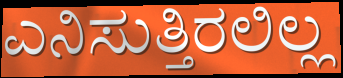
ಎನಿಸುತ್ತಿರಲಿಲ್ಲ